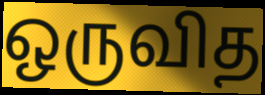
ஒருவித